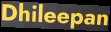
Dhileepan